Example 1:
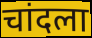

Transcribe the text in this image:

चांदला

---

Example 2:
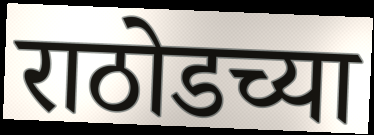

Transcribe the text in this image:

राठोडच्या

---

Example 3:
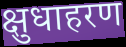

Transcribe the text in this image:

क्षुधाहरण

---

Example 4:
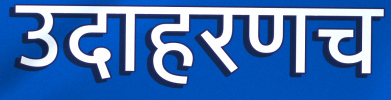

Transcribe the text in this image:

उदाहरणच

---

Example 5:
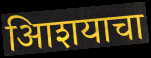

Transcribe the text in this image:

आिशयाचा